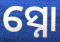
ସ୍ନୋ